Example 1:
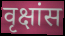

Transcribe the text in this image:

वृक्षांस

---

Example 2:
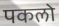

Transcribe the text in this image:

पकलो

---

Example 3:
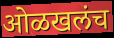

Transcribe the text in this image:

ओळखलंच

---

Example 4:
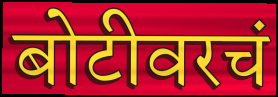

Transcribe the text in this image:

बोटीवरचं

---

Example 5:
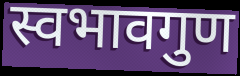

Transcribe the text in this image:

स्वभावगुण